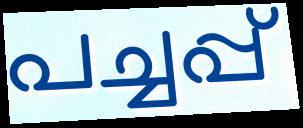
പച്ചപ്പ്